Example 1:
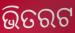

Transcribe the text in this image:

ଭିତରଟ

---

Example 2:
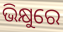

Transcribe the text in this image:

ଭିକ୍ଷୁରେ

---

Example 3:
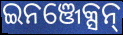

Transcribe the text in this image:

ଇନଞ୍ଜେକ୍ସନ୍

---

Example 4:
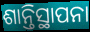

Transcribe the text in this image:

ଶାନ୍ତିସ୍ଥାପନା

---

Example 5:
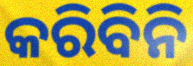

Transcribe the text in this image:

କରିବିନି